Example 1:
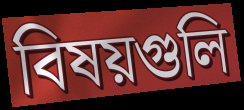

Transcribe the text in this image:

বিষয়গুলি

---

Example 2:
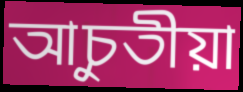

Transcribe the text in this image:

আচুতীয়া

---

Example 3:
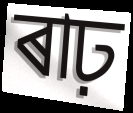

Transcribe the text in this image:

ৰাঢ়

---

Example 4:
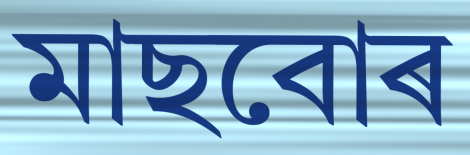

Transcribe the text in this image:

মাছবোৰ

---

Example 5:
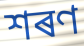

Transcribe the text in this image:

শৰণ